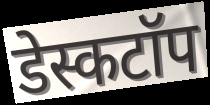
डेस्कटॉप